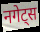
नगेट्स